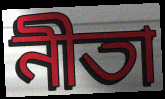
নীতা